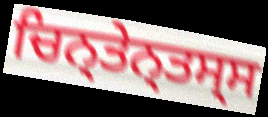
ਚਿਨ੍ਤੇਨ੍ਤਸ੍ਸ